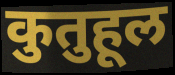
कुतुहूल